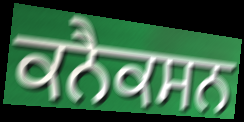
ਕਨੈਕਸਨ